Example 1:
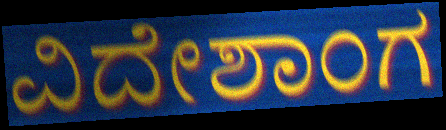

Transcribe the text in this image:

ವಿದೇಶಾಂಗ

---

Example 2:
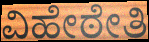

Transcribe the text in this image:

ವಿಹೇಠೇತಿ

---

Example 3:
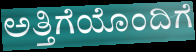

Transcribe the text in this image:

ಅತ್ತಿಗೆಯೊಂದಿಗೆ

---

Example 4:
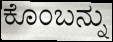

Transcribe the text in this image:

ಕೊಂಬನ್ನು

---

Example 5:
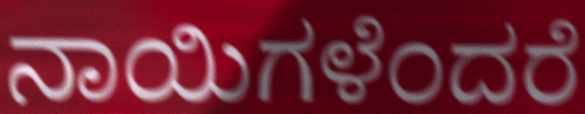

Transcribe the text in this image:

ನಾಯಿಗಳೆಂದರೆ